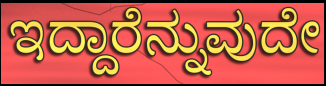
ಇದ್ದಾರೆನ್ನುವುದೇ